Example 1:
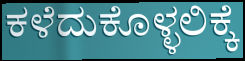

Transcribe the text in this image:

ಕಳೆದುಕೊಳ್ಳಲಿಕ್ಕೆ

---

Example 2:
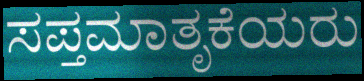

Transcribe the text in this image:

ಸಪ್ತಮಾತೃಕೆಯರು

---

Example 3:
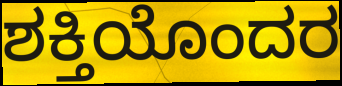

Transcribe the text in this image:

ಶಕ್ತಿಯೊಂದರ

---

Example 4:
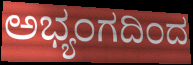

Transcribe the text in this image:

ಅಭ್ಯಂಗದಿಂದ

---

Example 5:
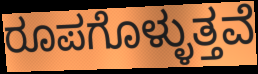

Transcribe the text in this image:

ರೂಪಗೊಳ್ಳುತ್ತವೆ